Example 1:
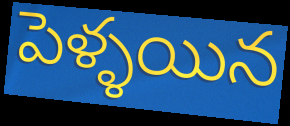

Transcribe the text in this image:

పెళ్ళయిన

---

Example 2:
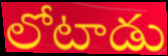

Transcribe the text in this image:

లోటాడు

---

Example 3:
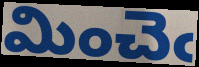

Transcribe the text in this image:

మించెఁ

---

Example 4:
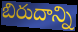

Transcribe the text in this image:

బిరుదాన్ని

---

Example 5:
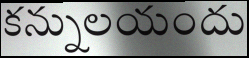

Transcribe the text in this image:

కన్నులయందు